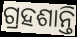
ଗ୍ରହଶାନ୍ତି